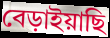
বেড়াইয়াছি